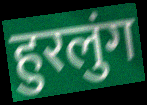
हुरलुंग